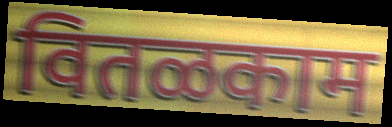
वितळकाम